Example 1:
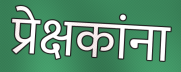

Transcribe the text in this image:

प्रेक्षकांना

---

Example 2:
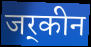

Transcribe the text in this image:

जर्कीन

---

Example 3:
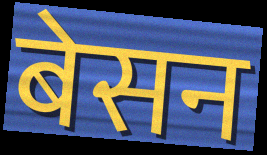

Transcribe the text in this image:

बेसन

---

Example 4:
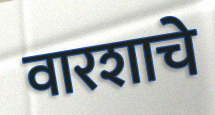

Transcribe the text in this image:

वारशाचे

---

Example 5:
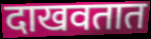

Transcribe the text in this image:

दाखवतात